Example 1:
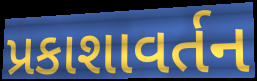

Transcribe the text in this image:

પ્રકાશાવર્તન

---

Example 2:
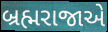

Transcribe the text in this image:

બ્રહ્મરાજાએ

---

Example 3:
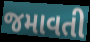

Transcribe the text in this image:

જમાવતી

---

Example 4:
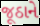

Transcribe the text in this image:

જૂઠાને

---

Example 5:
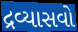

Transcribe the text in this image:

દ્રવ્યાસવો